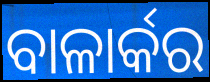
ବାଳାର୍କର